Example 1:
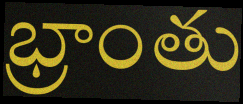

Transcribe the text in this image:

భ్రాంతు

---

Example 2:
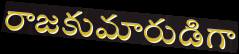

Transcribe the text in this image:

రాజకుమారుడిగా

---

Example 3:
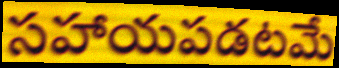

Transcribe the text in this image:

సహాయపడటమే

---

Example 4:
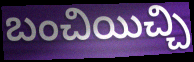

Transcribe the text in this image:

బంచియిచ్చి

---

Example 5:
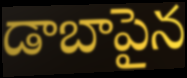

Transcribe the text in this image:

డాబాపైన